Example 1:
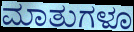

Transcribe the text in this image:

ಮಾತುಗಳೂ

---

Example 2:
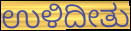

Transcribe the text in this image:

ಉಳಿದೀತು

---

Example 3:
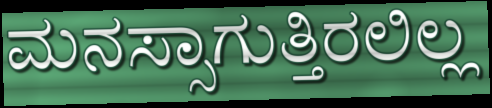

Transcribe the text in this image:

ಮನಸ್ಸಾಗುತ್ತಿರಲಿಲ್ಲ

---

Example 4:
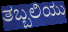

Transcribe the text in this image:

ತಬ್ಬಲಿಯು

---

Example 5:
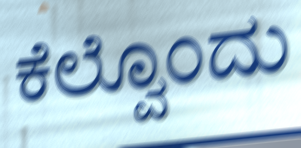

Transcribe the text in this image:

ಕೆಲ್ವೊಂದು